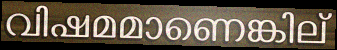
വിഷമമാണെങ്കില്